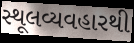
સ્થૂલવ્યવહારથી